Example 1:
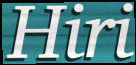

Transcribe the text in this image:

Hiri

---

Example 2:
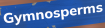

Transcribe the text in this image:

Gymnosperms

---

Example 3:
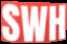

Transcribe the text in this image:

SWH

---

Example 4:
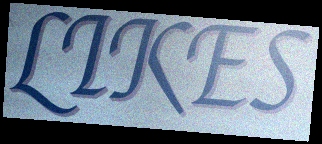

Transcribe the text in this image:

LIKES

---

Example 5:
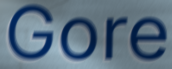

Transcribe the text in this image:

Gore